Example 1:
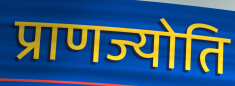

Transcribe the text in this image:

प्राणज्योति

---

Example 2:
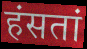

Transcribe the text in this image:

हंसतां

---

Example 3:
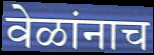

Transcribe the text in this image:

वेळांनाच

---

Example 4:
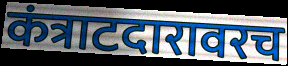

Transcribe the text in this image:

कंत्राटदारावरच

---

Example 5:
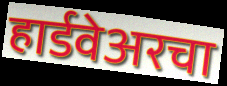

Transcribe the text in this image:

हार्डवेअरचा